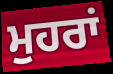
ਮੁਹਰਾਂ